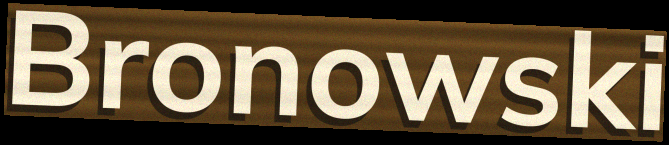
Bronowski